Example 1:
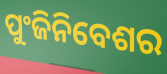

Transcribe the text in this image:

ପୁଂଜିନିବେଶର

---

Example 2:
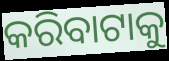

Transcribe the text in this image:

କରିବାଟାକୁ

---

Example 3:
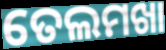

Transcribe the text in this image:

ତେଲମଖା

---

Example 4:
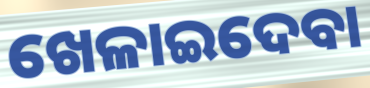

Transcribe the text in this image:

ଖେଳାଇଦେବା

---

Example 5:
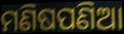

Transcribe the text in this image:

ମଣିଷପଣିଆ